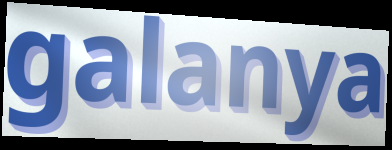
galanya